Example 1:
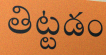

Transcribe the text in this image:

తిట్టడం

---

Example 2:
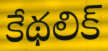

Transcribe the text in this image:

కేథలిక్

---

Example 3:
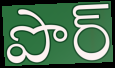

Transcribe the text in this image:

పొర్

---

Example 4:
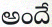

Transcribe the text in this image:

అందే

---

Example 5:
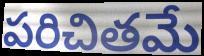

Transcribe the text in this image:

పరిచితమే